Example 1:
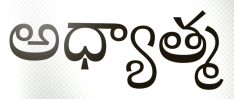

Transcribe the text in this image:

అధ్యాత్మ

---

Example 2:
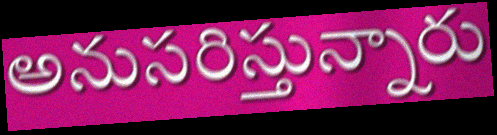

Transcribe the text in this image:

అనుసరిస్తున్నారు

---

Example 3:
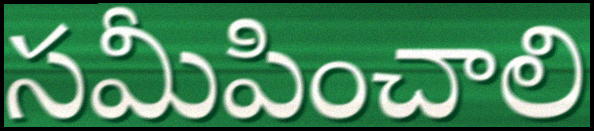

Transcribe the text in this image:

సమీపించాలి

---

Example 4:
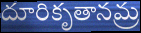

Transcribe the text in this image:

దూరికృతానమ్ర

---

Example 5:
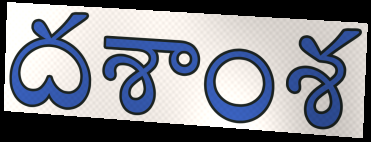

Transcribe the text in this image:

దశాంశ